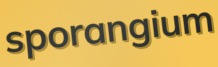
sporangium